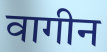
वागीन